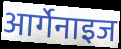
आर्गेनाइज